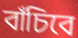
বাঁচিবে